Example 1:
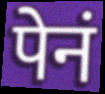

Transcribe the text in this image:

पेनं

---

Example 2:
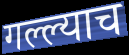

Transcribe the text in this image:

गल्ल्याच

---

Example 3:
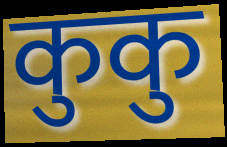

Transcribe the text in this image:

कुकु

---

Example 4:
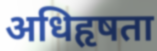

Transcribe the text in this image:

अधिहृषता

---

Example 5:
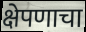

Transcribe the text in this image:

क्षेपणाचा